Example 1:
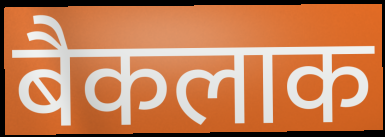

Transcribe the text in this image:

बैकलाक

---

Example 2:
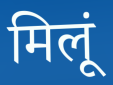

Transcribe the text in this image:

मिलूं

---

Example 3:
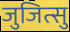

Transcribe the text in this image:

जुजित्सु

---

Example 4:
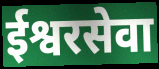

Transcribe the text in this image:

ईश्वरसेवा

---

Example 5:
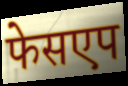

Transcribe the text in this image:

फेसएप